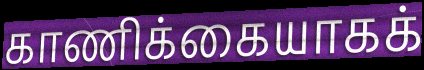
காணிக்கையாகக்